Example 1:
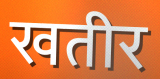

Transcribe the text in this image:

खतीर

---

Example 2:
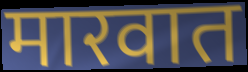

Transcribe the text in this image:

मारवात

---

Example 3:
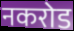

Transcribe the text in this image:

नकरोड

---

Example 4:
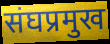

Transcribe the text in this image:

संघप्रमुख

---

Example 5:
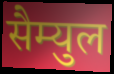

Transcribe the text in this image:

सैम्युल